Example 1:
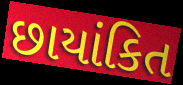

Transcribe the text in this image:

છાયાંકિત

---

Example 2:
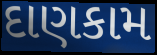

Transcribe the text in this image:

દાણકામ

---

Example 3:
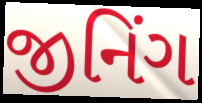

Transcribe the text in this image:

જીનિંગ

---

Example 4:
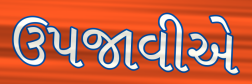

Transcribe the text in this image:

ઉપજાવીએ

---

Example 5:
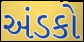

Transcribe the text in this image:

અંડકો